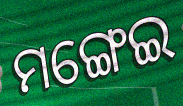
ମଙ୍ଗେଇ